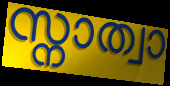
സ്നാത്വാ